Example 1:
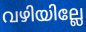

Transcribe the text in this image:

വഴിയില്ലേ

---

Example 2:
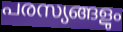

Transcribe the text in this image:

പരസ്യങ്ങളും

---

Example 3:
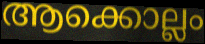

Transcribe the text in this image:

ആക്കൊല്ലം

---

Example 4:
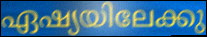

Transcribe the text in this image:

ഏഷ്യയിലേക്കു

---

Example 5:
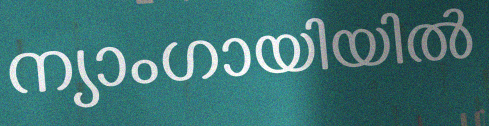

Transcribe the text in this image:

ന്യാംഗായിയിൽ